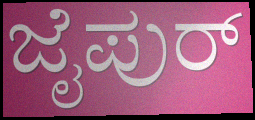
ಜೈಪುರ್